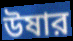
উষার